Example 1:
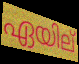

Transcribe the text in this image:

ഏയില്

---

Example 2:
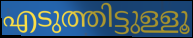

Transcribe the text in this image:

എടുത്തിട്ടുള്ളൂ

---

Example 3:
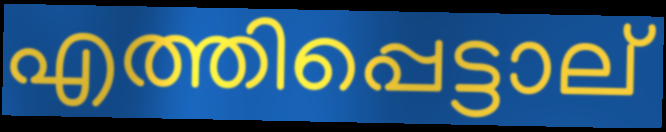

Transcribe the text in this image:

എത്തിപ്പെട്ടാല്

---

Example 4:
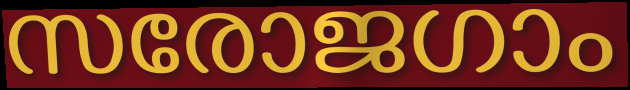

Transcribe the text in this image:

സരോജഗാം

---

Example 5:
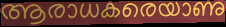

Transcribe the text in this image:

ആരാധകരെയാണു